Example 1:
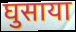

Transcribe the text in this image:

घुसाया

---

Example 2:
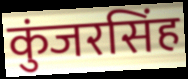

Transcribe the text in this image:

कुंजरसिंह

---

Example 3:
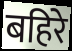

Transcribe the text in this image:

बहिरे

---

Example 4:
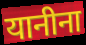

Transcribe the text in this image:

यानीना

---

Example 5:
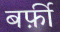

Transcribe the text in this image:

बर्फ़ी